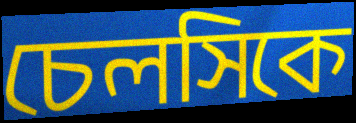
চেলসিকে